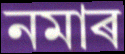
নমাৰ